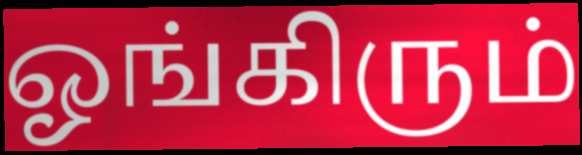
ஓங்கிரும்